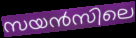
സയൻസിലെ